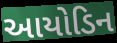
આયોડિન